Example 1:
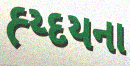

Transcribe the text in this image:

હ્ય્દયના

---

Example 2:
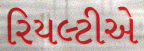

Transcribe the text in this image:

રિયલ્ટીએ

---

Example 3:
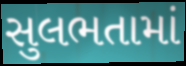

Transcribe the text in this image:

સુલભતામાં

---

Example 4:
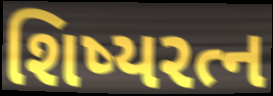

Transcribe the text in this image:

શિષ્યરત્ન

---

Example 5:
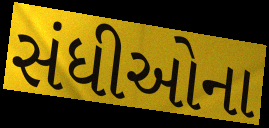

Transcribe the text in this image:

સંધીઓના